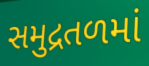
સમુદ્રતળમાં